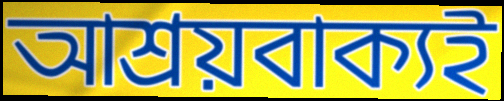
আশ্ৰয়বাক্যই